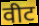
वीट